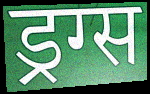
ड्रग्स